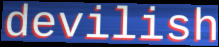
devilish